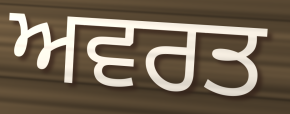
ਅਵਰਤ